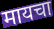
मायचा